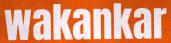
wakankar